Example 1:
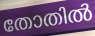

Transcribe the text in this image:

തോതിൽ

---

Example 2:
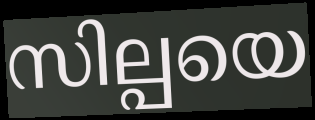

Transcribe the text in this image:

സില്പയെ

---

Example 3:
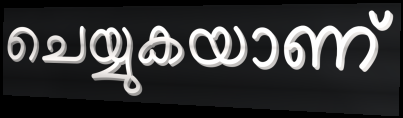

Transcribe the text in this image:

ചെയ്യുകയാണ്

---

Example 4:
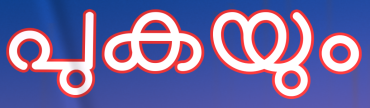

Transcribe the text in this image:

പുകയും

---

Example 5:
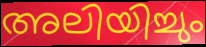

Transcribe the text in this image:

അലിയിച്ചും